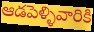
ఆడపెళ్ళివారికి